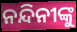
ନନ୍ଦିନୀଙ୍କୁ